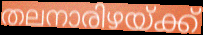
തലനാരിഴയ്ക്ക്